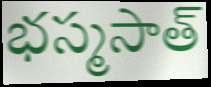
భస్మసాత్